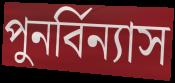
পুনর্বিন্যাস